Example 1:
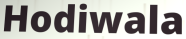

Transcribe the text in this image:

Hodiwala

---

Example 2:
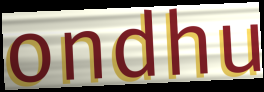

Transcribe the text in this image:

ondhu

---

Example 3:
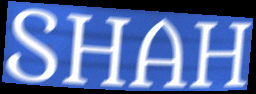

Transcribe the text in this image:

SHAH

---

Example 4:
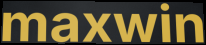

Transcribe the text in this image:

maxwin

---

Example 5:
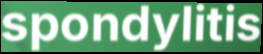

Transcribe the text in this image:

spondylitis